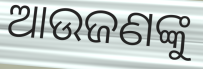
ଆଉଜଣଙ୍କୁ